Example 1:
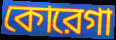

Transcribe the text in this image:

কোরেগা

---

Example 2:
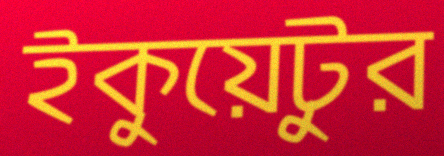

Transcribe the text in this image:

ইকুয়েটুর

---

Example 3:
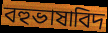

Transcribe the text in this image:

বহুভাষাবিদ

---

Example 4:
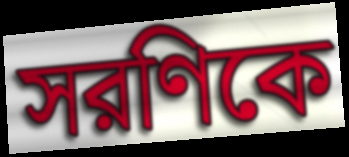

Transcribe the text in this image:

সরণিকে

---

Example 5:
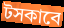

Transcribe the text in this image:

টসকাবে